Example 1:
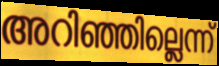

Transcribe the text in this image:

അറിഞ്ഞില്ലെന്ന്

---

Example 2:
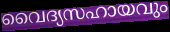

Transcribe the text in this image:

വൈദ്യസഹായവും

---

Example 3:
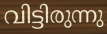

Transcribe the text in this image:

വിട്ടിരുന്നു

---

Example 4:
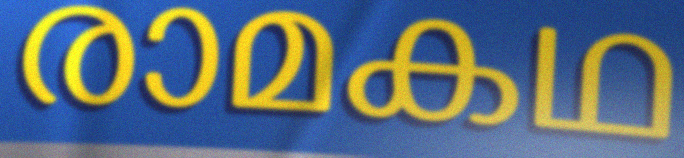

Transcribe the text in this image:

രാമകഥ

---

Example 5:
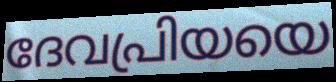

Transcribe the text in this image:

ദേവപ്രിയയെ